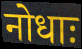
नोधाः